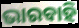
ଭାରବାହି